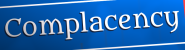
Complacency